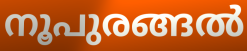
നൂപുരങ്ങൽ